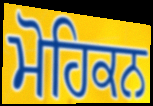
ਮੋਹਿਕਨ